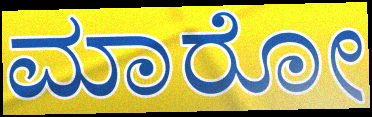
ಮಾರೋ